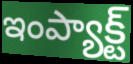
ఇంప్యాక్ట్